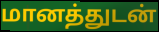
மானத்துடன்